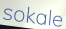
sokale